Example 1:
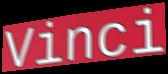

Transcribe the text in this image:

Vinci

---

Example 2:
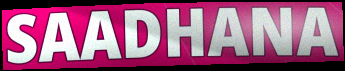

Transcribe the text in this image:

SAADHANA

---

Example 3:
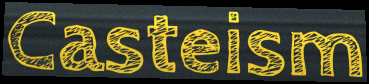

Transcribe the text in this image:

Casteism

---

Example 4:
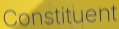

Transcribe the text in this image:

Constituent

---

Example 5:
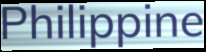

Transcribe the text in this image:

Philippine